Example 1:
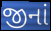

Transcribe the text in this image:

જીનાં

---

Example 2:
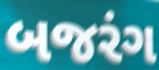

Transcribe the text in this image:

બજરંગ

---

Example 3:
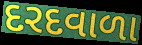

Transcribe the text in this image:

દરદવાળા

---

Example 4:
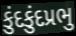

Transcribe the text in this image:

કુંદકુંદપ્રભુ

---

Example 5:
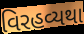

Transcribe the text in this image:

વિરહવ્યથા